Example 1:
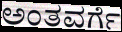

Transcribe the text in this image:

ಅಂತವರ್ಗೆ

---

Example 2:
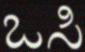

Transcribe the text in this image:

ಒಸಿ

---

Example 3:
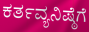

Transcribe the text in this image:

ಕರ್ತವ್ಯನಿಷ್ಠೆಗೆ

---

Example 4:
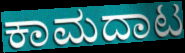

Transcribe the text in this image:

ಕಾಮದಾಟ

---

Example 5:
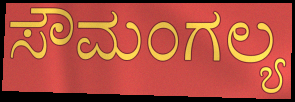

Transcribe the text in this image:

ಸೌಮಂಗಲ್ಯ